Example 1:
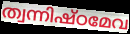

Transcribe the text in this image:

ത്വന്നിഷ്ഠമേവ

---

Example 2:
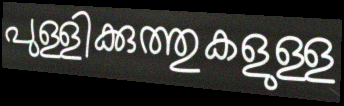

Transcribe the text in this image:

പുള്ളിക്കുത്തുകളുള്ള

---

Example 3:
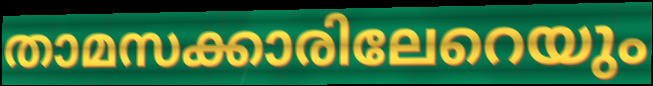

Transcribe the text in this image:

താമസക്കാരിലേറെയും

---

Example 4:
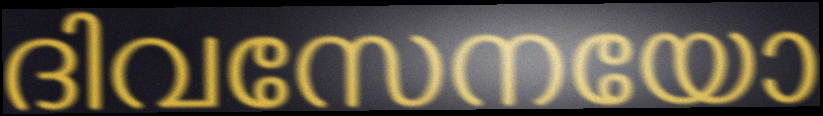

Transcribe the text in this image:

ദിവസേനയോ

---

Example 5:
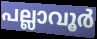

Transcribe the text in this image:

പല്ലാവൂർ